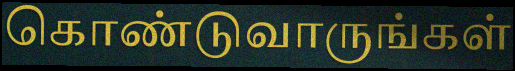
கொண்டுவாருங்கள்